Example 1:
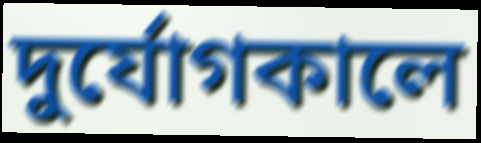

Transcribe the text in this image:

দুর্যোগকালে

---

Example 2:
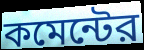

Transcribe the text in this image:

কমেন্টের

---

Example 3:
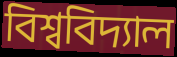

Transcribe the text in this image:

বিশ্ববিদ্যাল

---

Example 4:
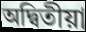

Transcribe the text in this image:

অদ্বিতীয়া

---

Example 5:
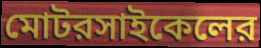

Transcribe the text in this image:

মোটরসাইকেলের